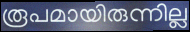
രൂപമായിരുന്നില്ല